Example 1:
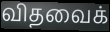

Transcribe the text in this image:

விதவைக்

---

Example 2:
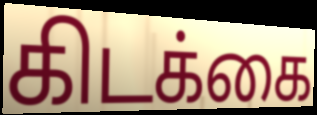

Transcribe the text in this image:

கிடக்கை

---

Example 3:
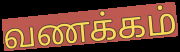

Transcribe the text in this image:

வணக்கம்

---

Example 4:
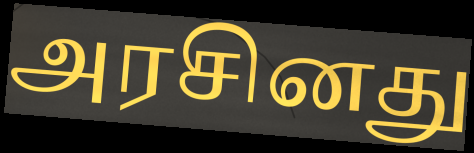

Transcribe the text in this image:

அரசினது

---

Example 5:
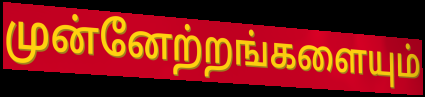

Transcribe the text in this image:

முன்னேற்றங்களையும்